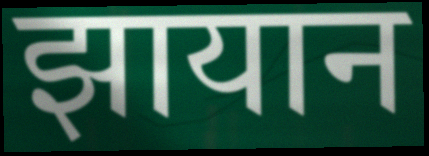
झायान